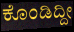
ಕೊಂಡಿದ್ದೀ